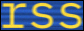
rss